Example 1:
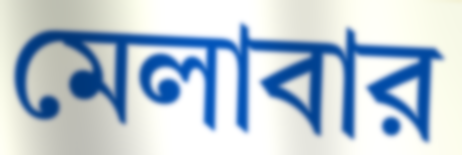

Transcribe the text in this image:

মেলাবার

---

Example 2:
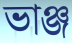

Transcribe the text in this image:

ভাঞ্জ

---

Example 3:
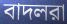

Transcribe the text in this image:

বাদলরা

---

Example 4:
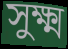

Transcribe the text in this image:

সুক্ষ্ম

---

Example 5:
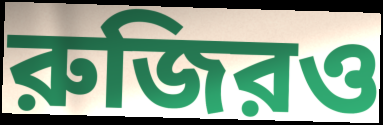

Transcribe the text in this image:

রুজিরও